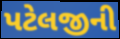
પટેલજીની